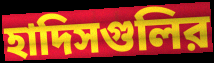
হাদিসগুলির